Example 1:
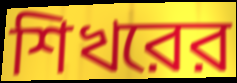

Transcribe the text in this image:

শিখরের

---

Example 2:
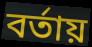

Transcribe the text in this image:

বর্তায়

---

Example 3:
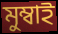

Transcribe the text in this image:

মুম্বাই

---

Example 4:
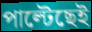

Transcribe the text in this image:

পাল্টেছেই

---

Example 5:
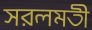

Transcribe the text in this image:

সরলমতী